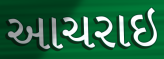
આચરાઇ